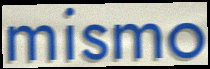
mismo